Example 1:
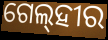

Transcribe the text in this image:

ଗେଲ୍‌ହୀର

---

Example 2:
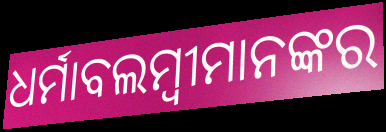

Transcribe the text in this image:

ଧର୍ମାବଲମ୍ବୀମାନଙ୍କର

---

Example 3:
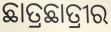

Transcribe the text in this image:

ଛାତ୍ରଛାତ୍ରୀର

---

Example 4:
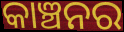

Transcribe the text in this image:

କାଞ୍ଚନର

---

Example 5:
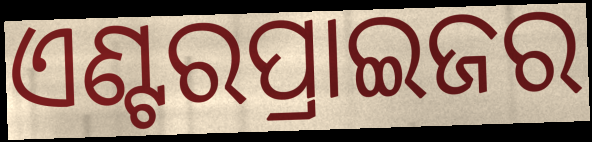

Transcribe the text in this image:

ଏଣ୍ଟରପ୍ରାଇଜର